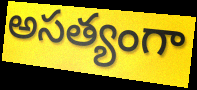
అసత్యంగా